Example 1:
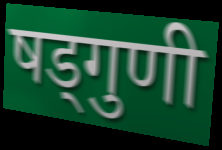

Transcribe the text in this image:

षड्गुणी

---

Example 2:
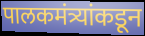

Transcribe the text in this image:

पालकमंत्र्यांकडून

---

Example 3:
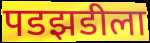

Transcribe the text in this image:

पडझडीला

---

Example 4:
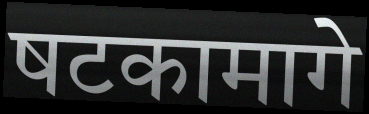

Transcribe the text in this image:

षटकामागे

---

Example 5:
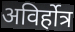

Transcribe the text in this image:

अविर्होत्र